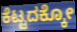
ಕೆಟ್ಟದಕ್ಕೋ